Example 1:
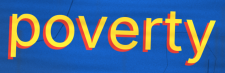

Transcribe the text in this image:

poverty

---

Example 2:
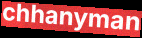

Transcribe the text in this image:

chhanyman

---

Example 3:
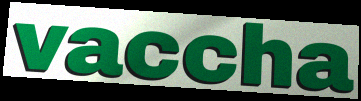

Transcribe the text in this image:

vaccha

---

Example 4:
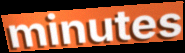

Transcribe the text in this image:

minutes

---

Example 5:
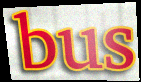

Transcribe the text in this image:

bus